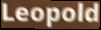
Leopold